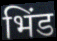
भिंड